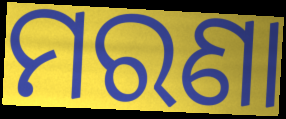
ମରଣା